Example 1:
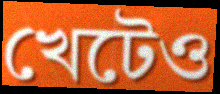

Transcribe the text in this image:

খেটেও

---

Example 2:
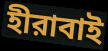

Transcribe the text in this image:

হীরাবাই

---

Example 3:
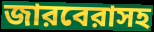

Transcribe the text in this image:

জারবেরাসহ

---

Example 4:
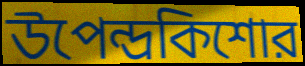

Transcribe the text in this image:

উপেন্দ্রকিশোর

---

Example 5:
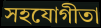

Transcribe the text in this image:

সহযোগীতা